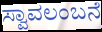
ಸ್ವಾವಲಂಬನೆ